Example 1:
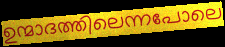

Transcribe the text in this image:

ഉന്മാദത്തിലെന്നപോലെ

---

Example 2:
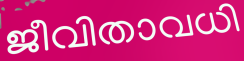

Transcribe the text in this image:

ജീവിതാവധി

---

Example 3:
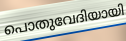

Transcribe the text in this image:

പൊതുവേദിയായി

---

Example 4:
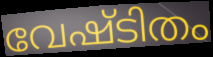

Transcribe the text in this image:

വേഷ്ടിതം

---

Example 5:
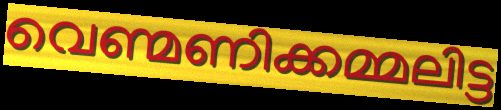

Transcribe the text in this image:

വെണ്മണിക്കമ്മലിട്ട